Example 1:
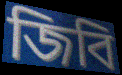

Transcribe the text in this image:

জিবি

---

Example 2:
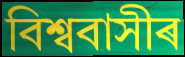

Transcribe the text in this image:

বিশ্ববাসীৰ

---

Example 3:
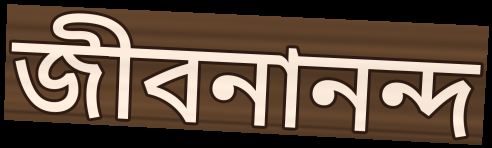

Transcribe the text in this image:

জীবনানন্দ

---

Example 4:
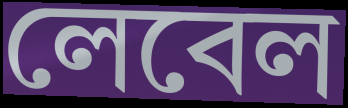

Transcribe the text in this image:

লেবেল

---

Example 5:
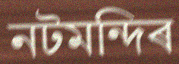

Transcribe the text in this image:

নটমন্দিৰ